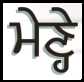
ਮੇਣ੍ਹੇ